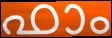
ഫാം